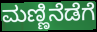
ಮಣ್ಣಿನೆಡೆಗೆ